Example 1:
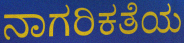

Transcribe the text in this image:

ನಾಗರಿಕತೆಯ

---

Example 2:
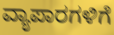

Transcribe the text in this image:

ವ್ಯಾಪಾರಗಳಿಗೆ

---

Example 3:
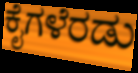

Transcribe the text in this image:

ಕೈಗಳೆರಡು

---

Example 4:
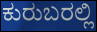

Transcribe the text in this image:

ಕುರುಬರಲ್ಲಿ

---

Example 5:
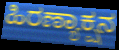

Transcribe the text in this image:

ಹಿರಣ್ಯಾಕ್ಷನ